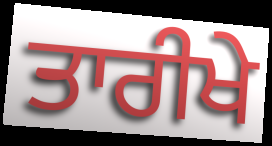
ਤਾਰੀਖੇ